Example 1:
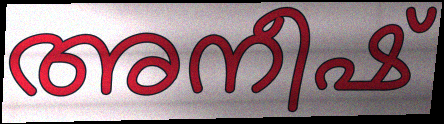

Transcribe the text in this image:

അനീഷ്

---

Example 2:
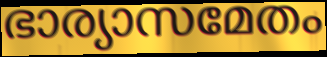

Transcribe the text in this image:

ഭാര്യാസമേതം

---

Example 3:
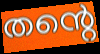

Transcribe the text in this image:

തന്റെ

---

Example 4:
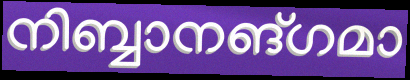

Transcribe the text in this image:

നിബ്ബാനങ്ഗമാ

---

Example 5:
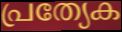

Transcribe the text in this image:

പ്രത്യേക